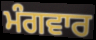
ਮੰਗਵਾਰ